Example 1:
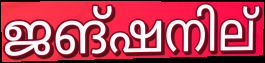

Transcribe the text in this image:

ജങ്ഷനില്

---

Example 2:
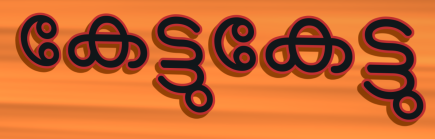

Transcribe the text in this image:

കേട്ടുകേട്ടു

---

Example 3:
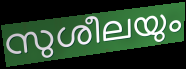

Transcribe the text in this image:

സുശീലയും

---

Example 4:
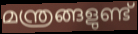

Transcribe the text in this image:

മന്ത്രങ്ങളുണ്ട്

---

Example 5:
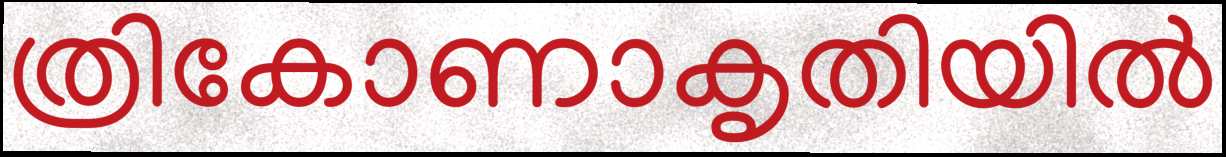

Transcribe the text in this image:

ത്രികോണാകൃതിയിൽ